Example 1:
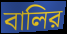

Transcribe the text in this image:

বালির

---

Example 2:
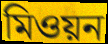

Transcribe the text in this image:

মিওয়ন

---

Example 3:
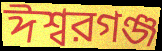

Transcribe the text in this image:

ঈশ্বরগঞ্জ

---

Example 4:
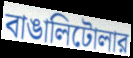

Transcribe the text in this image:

বাঙালিটোলার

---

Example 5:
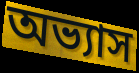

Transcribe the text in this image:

অভ্যাস